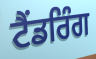
ਟੈਂਡਰਿੰਗ